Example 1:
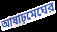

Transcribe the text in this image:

আষাঢ়মেঘের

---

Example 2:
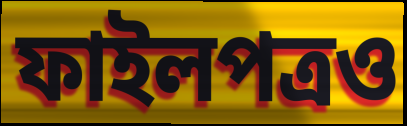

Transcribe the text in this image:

ফাইলপত্রও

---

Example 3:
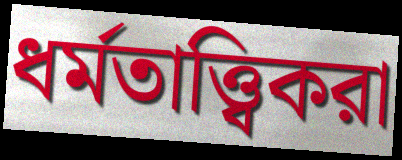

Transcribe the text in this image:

ধর্মতাত্ত্বিকরা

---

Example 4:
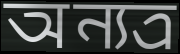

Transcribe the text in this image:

অন্যত্র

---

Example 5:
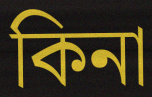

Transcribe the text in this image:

কিনা